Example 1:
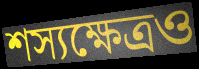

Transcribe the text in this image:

শস্যক্ষেত্রও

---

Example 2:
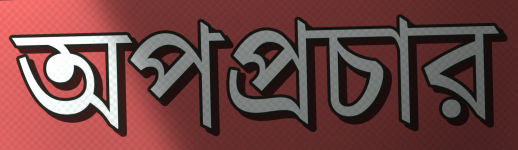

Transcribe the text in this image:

অপপ্রচার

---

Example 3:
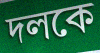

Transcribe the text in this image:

দলকে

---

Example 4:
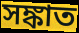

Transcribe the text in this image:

সঙ্কাত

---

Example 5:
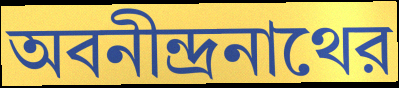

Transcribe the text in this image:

অবনীন্দ্রনাথের